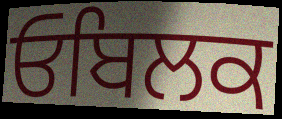
ਓਬਿਲਕ